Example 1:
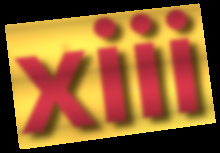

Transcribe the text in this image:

xiii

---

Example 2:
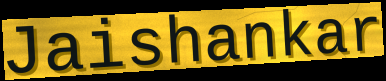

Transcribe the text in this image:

Jaishankar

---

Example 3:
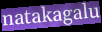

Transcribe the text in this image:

natakagalu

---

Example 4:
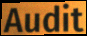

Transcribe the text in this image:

Audit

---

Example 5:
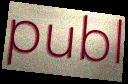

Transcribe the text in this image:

publ